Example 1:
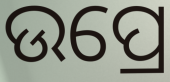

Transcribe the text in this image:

ଉପ୍ରେ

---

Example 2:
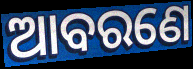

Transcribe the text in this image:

ଆବରଣେ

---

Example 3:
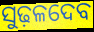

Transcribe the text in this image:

ସୁଢ଼ଳଦେବ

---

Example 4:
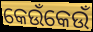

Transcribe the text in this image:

କେଉଁକେଉଁ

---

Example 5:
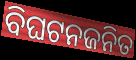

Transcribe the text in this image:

ବିଘଟନଜନିତ